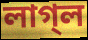
লাগ্‌ল